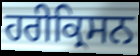
ਹਰੀਕ੍ਰਿਸਨ